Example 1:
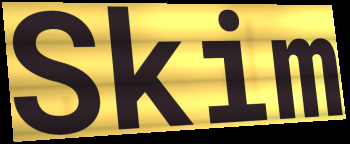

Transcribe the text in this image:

Skim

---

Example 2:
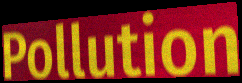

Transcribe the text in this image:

Pollution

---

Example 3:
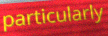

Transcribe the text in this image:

particularly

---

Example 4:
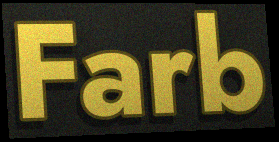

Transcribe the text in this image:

Farb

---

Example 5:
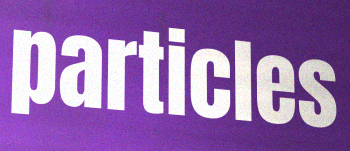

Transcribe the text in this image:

particles